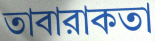
তাবারাকতা